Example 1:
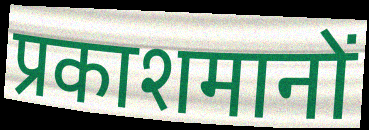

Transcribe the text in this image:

प्रकाशमानों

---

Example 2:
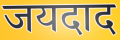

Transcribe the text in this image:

जयदाद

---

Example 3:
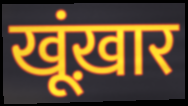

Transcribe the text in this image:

खूंख़ार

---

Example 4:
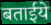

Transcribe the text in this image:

बताईये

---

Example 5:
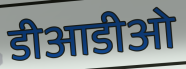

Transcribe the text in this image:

डीआडीओ